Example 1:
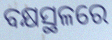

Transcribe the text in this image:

ବକ୍ଷସ୍ଥଳରେ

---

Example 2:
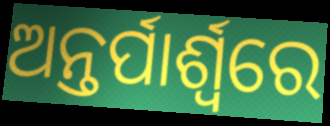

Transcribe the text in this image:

ଅନ୍ତର୍ପାର୍ଶ୍ୱରେ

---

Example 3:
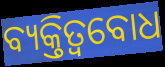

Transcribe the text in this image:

ବ୍ୟକ୍ତିତ୍ୱବୋଧ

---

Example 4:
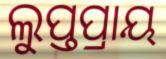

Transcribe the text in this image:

ଲୁପ୍ତପ୍ରାୟ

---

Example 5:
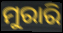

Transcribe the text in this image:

ମୁରାରି